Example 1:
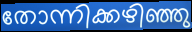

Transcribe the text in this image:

തോന്നിക്കഴിഞ്ഞു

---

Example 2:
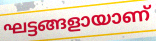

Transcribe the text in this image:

ഘട്ടങ്ങളായാണ്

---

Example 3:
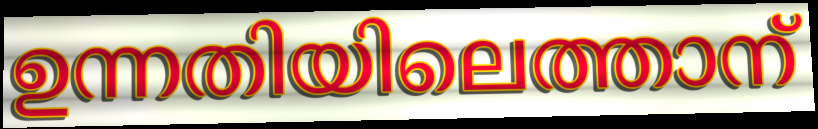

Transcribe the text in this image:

ഉന്നതിയിലെത്താന്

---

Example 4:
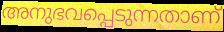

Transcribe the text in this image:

അനുഭവപ്പെടുന്നതാണ്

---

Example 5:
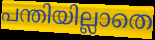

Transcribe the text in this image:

പന്തിയില്ലാതെ